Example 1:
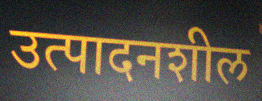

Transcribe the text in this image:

उत्पादनशील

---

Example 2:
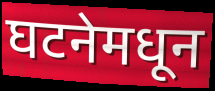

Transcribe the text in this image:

घटनेमधून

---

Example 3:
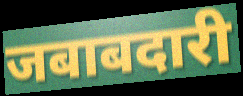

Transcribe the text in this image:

जबाबदारी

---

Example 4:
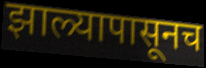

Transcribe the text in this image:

झाल्यापासूनच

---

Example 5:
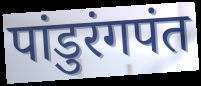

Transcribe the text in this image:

पांडुरंगपंत